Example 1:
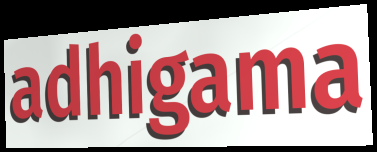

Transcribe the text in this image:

adhigama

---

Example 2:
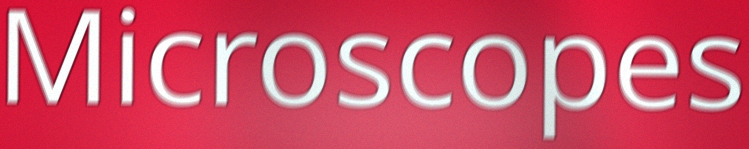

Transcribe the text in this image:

Microscopes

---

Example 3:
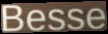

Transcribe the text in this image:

Besse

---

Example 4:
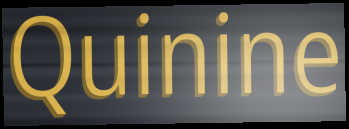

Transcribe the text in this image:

Quinine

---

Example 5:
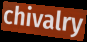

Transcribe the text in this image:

chivalry